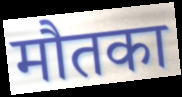
मौतका